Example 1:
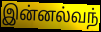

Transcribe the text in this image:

இன்னல்வந்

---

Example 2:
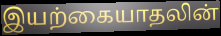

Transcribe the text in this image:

இயற்கையாதலின்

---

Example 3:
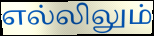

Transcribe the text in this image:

எல்லிலும்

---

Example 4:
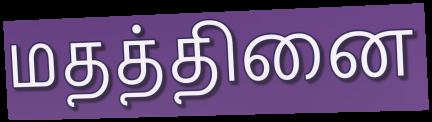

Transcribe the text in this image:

மதத்தினை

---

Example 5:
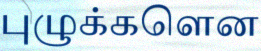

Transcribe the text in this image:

புழுக்களென